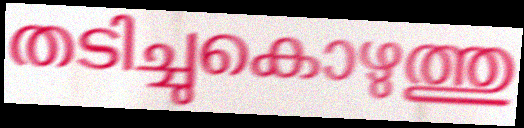
തടിച്ചുകൊഴുത്തു